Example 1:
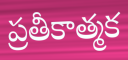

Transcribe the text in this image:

ప్రతీకాత్మక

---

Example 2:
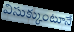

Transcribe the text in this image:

విసుక్కుంటూనే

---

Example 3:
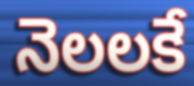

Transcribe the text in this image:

నెలలకే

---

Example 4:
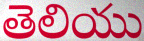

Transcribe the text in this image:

తెలియు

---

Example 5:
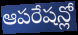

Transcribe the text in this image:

ఆపరేషన్లో